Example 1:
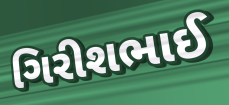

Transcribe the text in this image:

ગિરીશભાઈ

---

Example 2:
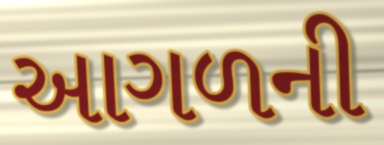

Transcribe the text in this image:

આગળની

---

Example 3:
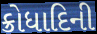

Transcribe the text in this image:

ક્રોધાદિની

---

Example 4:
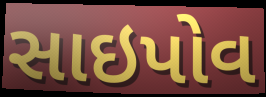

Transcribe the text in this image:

સાઇપોવ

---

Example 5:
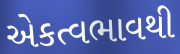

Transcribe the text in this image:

એકત્વભાવથી